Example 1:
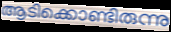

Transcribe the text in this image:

ആടിക്കൊണ്ടിരുന്നു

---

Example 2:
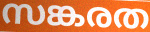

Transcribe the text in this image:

സങ്കരത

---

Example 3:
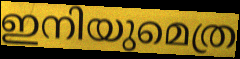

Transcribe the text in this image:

ഇനിയുമെത്ര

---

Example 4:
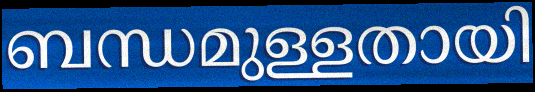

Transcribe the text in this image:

ബന്ധമുള്ളതായി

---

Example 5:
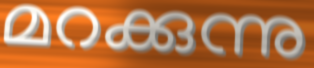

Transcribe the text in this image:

മറക്കുന്നു